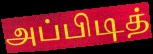
அப்பிடித்